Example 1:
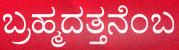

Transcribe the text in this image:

ಬ್ರಹ್ಮದತ್ತನೆಂಬ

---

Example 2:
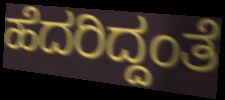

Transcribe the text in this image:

ಹೆದರಿದ್ದಂತೆ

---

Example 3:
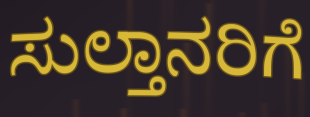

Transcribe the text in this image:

ಸುಲ್ತಾನರಿಗೆ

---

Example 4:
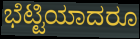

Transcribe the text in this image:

ಭೆಟ್ಟಿಯಾದರೂ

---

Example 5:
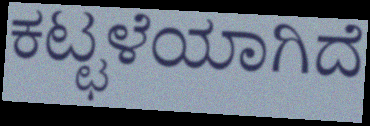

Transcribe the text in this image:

ಕಟ್ಟಳೆಯಾಗಿದೆ